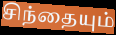
சிந்தையும்